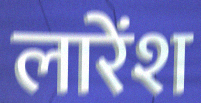
लारेंश